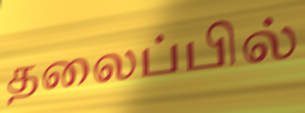
தலைப்பில்